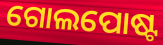
ଗୋଲପୋଷ୍ଟ